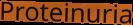
Proteinuria